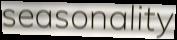
seasonality